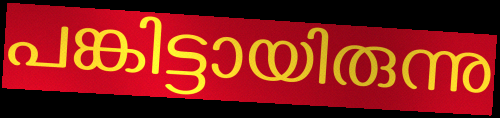
പങ്കിട്ടായിരുന്നു